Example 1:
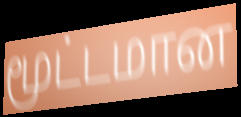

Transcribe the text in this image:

மூட்டமான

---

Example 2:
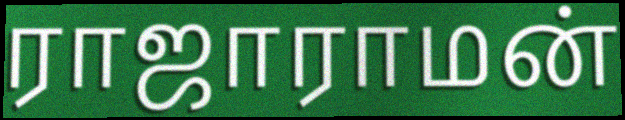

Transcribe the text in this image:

ராஜாராமன்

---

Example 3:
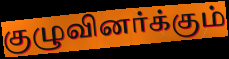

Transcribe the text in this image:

குழுவினர்க்கும்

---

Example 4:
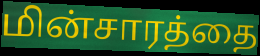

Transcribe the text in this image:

மின்சாரத்தை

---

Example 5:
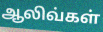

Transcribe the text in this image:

ஆலிவ்கள்